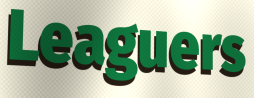
Leaguers